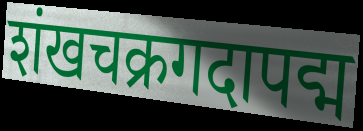
शंखचक्रगदापद्म